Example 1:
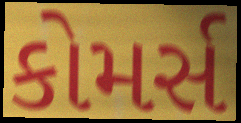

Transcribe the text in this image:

કોમર્સ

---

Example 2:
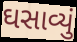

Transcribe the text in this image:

ઘસાવ્યું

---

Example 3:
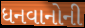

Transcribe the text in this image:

ધનવાનોની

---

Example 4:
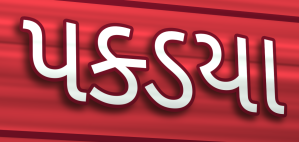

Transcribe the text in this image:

પક્ડયા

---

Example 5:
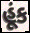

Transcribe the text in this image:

હૂંક